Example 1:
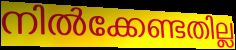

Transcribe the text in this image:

നിൽക്കേണ്ടതില്ല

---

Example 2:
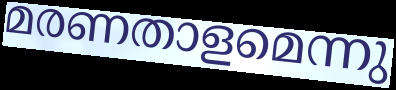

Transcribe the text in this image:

മരണതാളമെന്നു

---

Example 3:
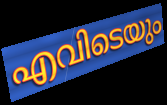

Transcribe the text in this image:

എവിടെയും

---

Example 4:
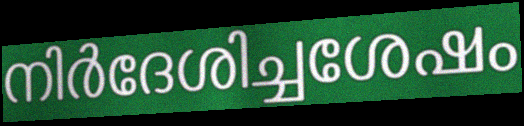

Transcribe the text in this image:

നിർദേശിച്ചശേഷം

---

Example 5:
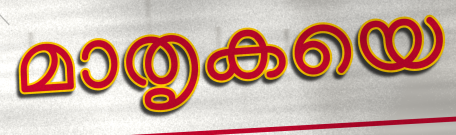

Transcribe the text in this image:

മാതൃകയെ